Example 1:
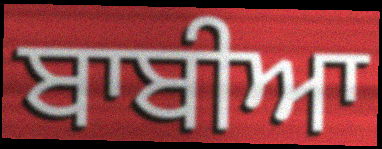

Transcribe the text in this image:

ਬਾਬੀਆ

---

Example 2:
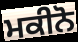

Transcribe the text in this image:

ਮਕੀਨੋ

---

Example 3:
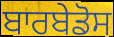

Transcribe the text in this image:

ਬਾਰਬੇਡੋਸ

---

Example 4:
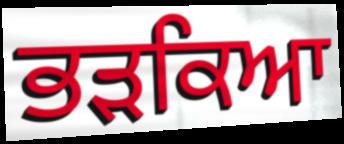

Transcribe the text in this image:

ਭੜਕਿਆ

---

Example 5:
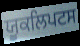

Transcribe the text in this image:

ਯੂਕਲਿਪਟਸ